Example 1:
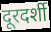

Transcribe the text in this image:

दूरदर्शी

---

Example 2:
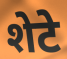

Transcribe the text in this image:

शेटे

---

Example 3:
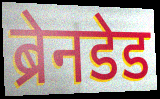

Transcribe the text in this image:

ब्रेनडेड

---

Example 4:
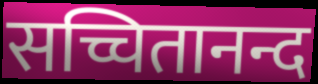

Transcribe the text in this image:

सच्चितानन्द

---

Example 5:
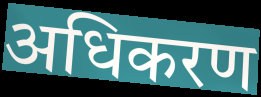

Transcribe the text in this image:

अधिकरण